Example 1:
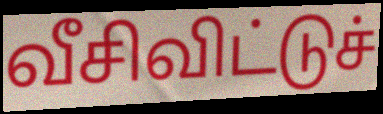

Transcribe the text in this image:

வீசிவிட்டுச்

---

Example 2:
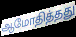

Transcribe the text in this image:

ஆமோதித்தது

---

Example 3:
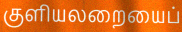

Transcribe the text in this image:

குளியலறையைப்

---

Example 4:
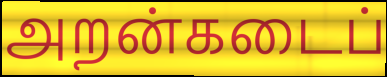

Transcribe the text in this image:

அறன்கடைப்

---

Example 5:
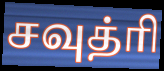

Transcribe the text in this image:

சவுத்ரி